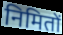
निमितों